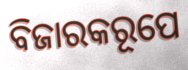
ବିଜାରକରୂପେ